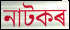
নাটকৰ